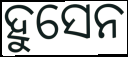
ହୁସେନ